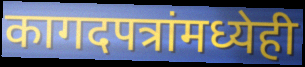
कागदपत्रांमध्येही